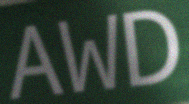
AWD